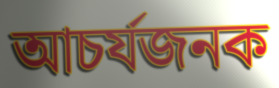
আচৰ্যজনক